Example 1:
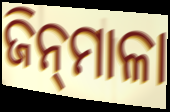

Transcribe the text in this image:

ଜିନ୍‌ମାଳା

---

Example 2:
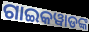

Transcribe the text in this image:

ଗାଇକୱାଡଙ୍କ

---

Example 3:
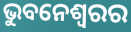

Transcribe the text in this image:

ଭୁବନେଶ୍ଵରର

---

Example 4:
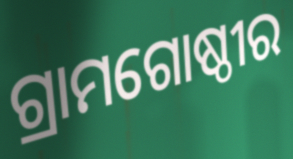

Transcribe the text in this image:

ଗ୍ରାମଗୋଷ୍ଠୀର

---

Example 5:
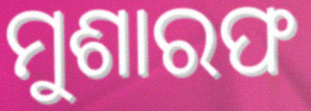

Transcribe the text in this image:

ମୁଶାରଫ